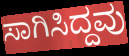
ಸಾಗಿಸಿದ್ದವು